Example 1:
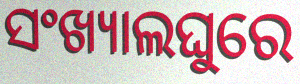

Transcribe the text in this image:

ସଂଖ୍ୟାଲଘୁରେ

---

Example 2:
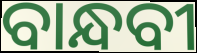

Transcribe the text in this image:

ବାନ୍ଧବୀ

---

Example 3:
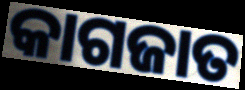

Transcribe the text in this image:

କାଗଜାତ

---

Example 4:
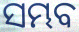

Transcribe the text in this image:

ସମ୍ଭବ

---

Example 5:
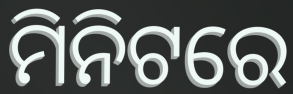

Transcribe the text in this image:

ମିନିଟରେ